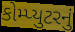
કોમ્પ્યુટરનું